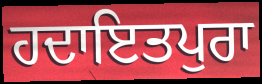
ਹਦਾਇਤਪੁਰਾ